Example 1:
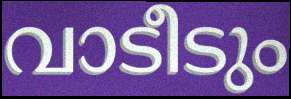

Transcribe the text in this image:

വാടീടും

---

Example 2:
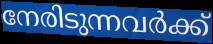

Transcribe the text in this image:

നേരിടുന്നവർക്ക്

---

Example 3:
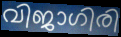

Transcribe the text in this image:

വിജാഗിരി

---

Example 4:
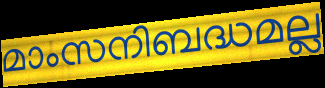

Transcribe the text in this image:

മാംസനിബദ്ധമല്ല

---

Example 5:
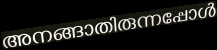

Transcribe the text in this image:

അനങ്ങാതിരുന്നപ്പോൾ